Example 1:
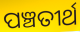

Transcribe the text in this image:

ପଞ୍ଚତୀର୍ଥ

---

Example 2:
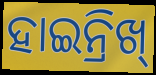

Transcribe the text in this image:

ହାଇନ୍ରିଖ୍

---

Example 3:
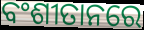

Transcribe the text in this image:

ବଂଶୀତାନରେ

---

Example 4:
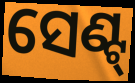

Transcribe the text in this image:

ସେଣ୍ଟ୍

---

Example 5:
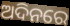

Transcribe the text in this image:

ଅଦିନରେ